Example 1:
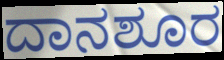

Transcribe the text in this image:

ದಾನಶೂರ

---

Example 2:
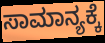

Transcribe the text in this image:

ಸಾಮಾನ್ಯಕ್ಕೆ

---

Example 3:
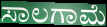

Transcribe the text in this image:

ಸಾಲಗಾಮೆ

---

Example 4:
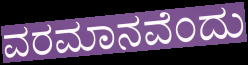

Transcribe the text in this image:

ವರಮಾನವೆಂದು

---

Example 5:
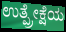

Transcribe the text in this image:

ಉತ್ಪ್ರೇಕ್ಷೆಯ